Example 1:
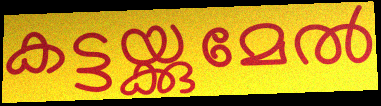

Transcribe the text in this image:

കട്ടയ്ക്കുമേൽ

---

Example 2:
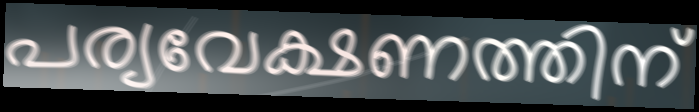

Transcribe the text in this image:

പര്യവേക്ഷണത്തിന്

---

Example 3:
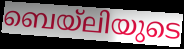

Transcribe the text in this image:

ബെയ്ലിയുടെ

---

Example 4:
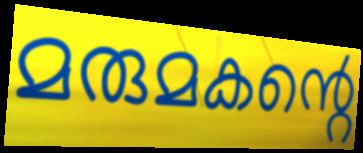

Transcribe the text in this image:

മരുമകന്റെ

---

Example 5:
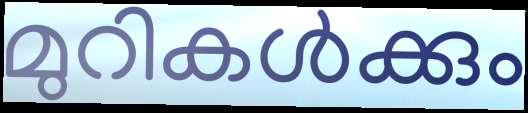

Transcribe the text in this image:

മുറികൾക്കും